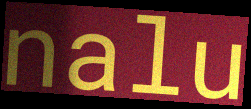
nalu